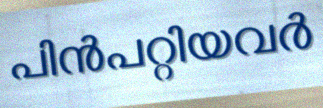
പിൻപറ്റിയവർ